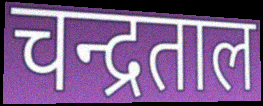
चन्द्रताल